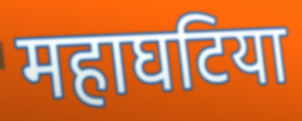
महाघटिया